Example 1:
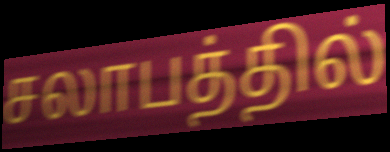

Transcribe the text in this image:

சலாபத்தில்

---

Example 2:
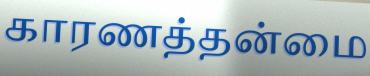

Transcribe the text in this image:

காரணத்தன்மை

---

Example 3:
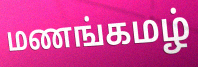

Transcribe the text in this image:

மணங்கமழ்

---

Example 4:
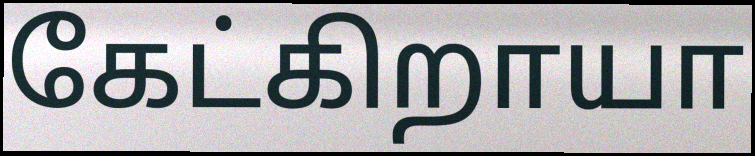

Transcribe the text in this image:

கேட்கிறாயா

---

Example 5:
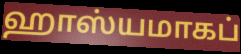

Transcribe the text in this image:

ஹாஸ்யமாகப்